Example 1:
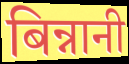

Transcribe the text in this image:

बिन्नानी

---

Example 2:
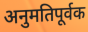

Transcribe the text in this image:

अनुमतिपूर्वक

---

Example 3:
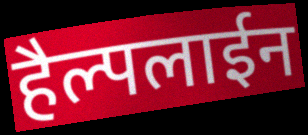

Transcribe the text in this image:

हैल्पलाईन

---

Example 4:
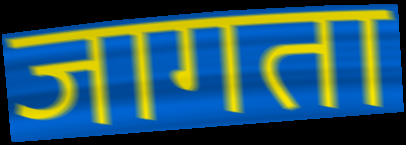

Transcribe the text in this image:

जागता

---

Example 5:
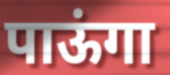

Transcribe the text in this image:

पाऊंगा